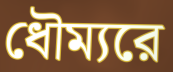
ধৌম্যরে